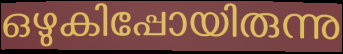
ഒഴുകിപ്പോയിരുന്നു